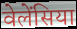
वेलेंसिया